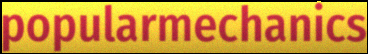
popularmechanics